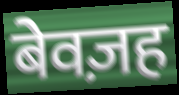
बेवज़ह